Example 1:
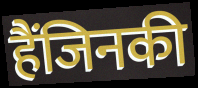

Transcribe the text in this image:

हैंजिनकी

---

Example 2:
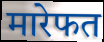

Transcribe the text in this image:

मारेफत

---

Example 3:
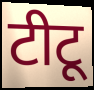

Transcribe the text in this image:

टीटू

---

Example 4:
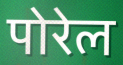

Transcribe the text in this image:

पोरेल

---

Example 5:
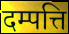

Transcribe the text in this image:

दम्पत्ति